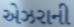
એઝરાની